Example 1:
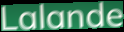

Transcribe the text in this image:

Lalande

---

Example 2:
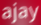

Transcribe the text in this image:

ajay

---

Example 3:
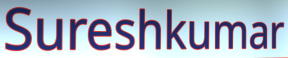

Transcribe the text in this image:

Sureshkumar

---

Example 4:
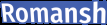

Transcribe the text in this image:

Romansh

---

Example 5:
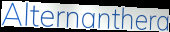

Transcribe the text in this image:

Alternanthera